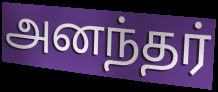
அனந்தர்